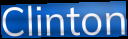
Clinton